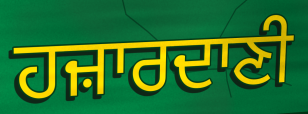
ਹਜ਼ਾਰਦਾਣੀ